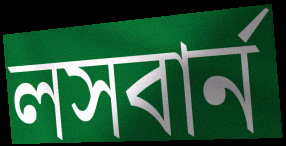
লসবার্ন